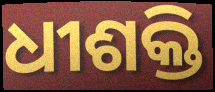
ଧୀଶକ୍ତି